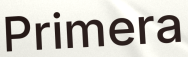
Primera